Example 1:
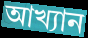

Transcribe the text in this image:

আখ্যান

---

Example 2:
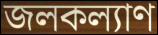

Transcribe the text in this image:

জলকল্যাণ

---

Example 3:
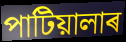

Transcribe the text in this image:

পাটিয়ালাৰ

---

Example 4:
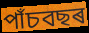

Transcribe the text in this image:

পাঁচবছৰ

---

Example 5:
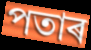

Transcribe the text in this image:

পতাৰ